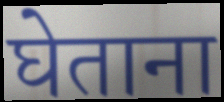
घेताना